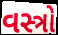
વસ્ત્રો